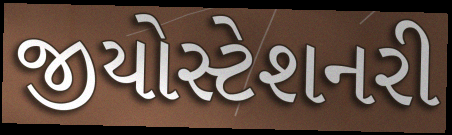
જીયોસ્ટેશનરી